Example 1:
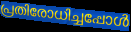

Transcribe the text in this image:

പ്രതിരോധിച്ചപ്പോൾ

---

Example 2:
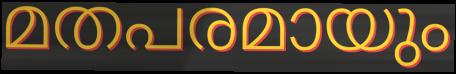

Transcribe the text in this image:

മതപരമായും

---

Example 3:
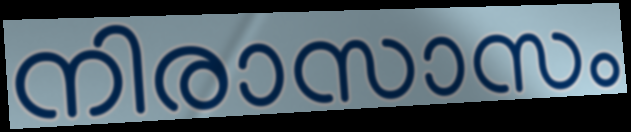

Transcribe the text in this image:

നിരാസാസം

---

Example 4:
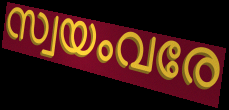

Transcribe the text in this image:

സ്വയംവരേ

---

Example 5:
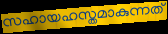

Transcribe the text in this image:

സഹായഹസ്തമാകുന്നത്